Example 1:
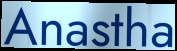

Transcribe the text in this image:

Anastha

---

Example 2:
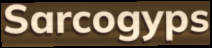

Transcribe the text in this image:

Sarcogyps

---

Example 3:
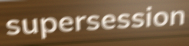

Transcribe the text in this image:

supersession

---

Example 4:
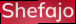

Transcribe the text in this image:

Shefajo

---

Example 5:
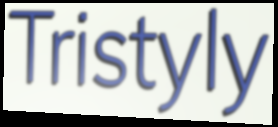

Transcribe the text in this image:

Tristyly